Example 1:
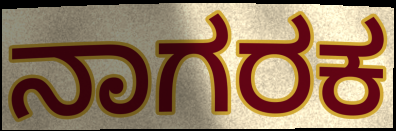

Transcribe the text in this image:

ನಾಗರಕ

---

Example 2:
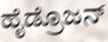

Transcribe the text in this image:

ಹೈಡ್ರೊಜನ್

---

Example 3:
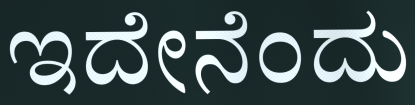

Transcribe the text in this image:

ಇದೇನೆಂದು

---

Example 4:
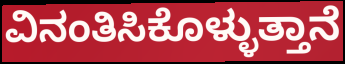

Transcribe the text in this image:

ವಿನಂತಿಸಿಕೊಳ್ಳುತ್ತಾನೆ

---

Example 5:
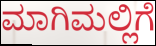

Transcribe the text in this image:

ಮಾಗಿಮಲ್ಲಿಗೆ